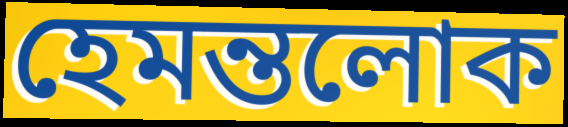
হেমন্তলোক